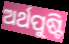
ଅର୍ଥପୁଷ୍ଟି